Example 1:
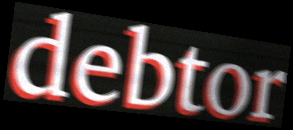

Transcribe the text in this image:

debtor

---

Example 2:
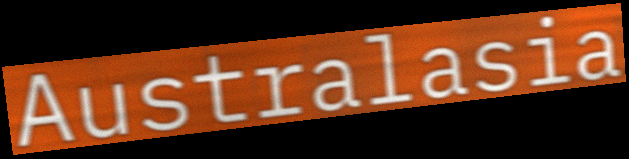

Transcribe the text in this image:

Australasia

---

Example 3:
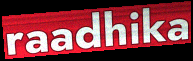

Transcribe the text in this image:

raadhika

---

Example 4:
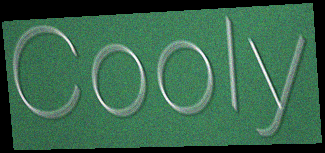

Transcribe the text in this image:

Cooly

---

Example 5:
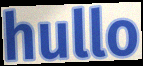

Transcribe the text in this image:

hullo